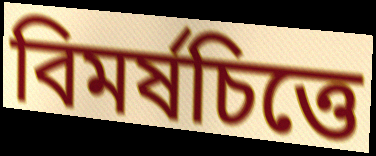
বিমর্ষচিত্তে